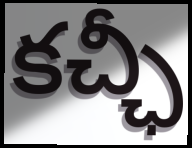
కచ్ఛీ